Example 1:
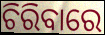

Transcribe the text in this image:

ଚିରିବାରେ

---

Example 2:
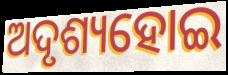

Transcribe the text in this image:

ଅଦୃଶ୍ୟହୋଇ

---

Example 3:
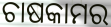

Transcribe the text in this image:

ଚାଷକାମର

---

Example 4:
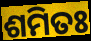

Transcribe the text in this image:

ଶମିତଃ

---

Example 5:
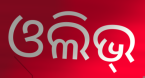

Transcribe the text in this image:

ଓଲିଭ୍